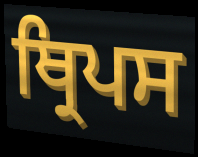
ਥ੍ਰਿਪਸ